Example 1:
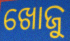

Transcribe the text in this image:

ଖୋଜୁ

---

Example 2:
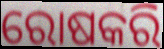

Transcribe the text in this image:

ରୋଷକରି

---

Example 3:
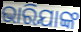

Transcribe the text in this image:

ଭାରିଯାଙ୍କ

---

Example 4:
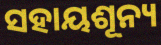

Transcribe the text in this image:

ସହାୟଶୂନ୍ୟ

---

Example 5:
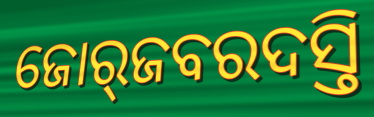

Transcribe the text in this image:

ଜୋର୍‍ଜବରଦସ୍ତି